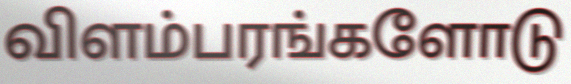
விளம்பரங்களோடு